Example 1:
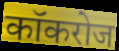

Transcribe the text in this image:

कॉकरोज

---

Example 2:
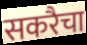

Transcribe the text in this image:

सकरैचा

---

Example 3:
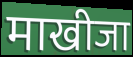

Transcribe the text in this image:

माखीजा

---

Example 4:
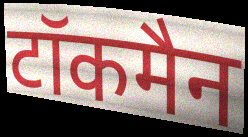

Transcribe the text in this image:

टॉकमैन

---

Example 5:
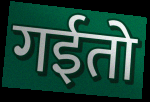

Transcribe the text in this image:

गईतो